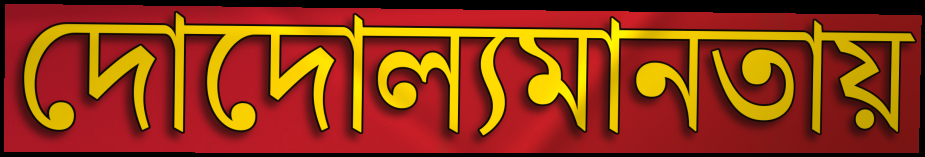
দোদোল্যমানতায়